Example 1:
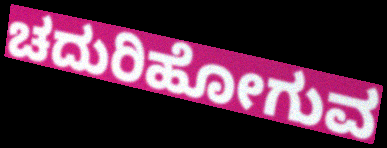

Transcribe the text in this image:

ಚದುರಿಹೋಗುವ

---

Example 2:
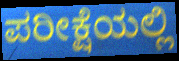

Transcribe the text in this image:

ಪರೀಕ್ಷೆಯಲ್ಲಿ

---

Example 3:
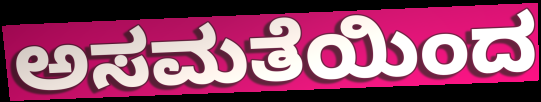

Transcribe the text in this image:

ಅಸಮತೆಯಿಂದ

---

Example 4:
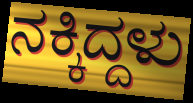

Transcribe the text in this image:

ನಕ್ಕಿದ್ದಳು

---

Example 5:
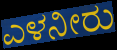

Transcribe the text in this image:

ಎಳನೀರು